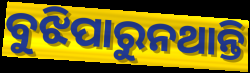
ବୁଝିପାରୁନଥାନ୍ତି